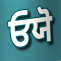
ਓਯੋ